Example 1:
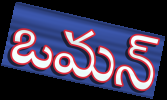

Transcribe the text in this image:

ఒమన్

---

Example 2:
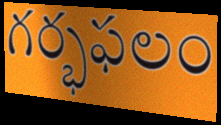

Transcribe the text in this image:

గర్భఫలం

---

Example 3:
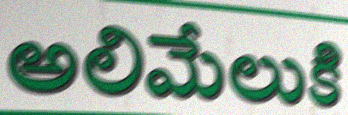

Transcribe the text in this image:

అలిమేలుకి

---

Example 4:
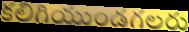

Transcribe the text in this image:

కలిగియుండగలరు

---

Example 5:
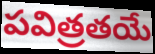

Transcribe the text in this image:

పవిత్రతయే